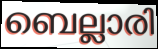
ബെല്ലാരി